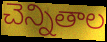
చెన్నితాల